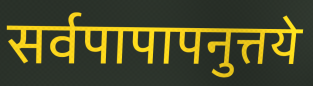
सर्वपापापनुत्तये